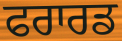
ਫਰਾਰਡ